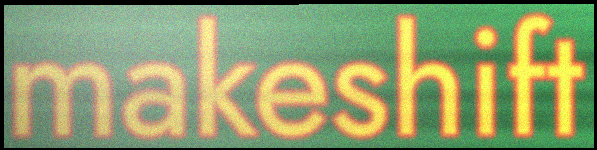
makeshift